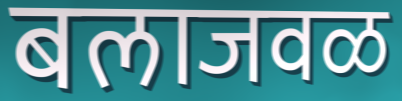
बलाजवळ